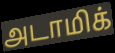
அடாமிக்